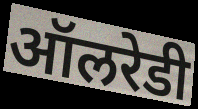
ऑलरेडी